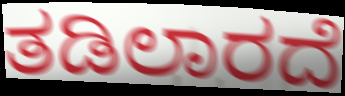
ತಡಿಲಾರದೆ